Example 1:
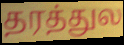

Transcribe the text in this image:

தரத்துல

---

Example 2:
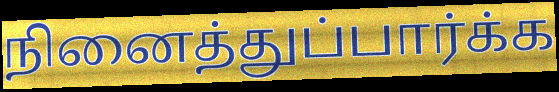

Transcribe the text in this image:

நினைத்துப்பார்க்க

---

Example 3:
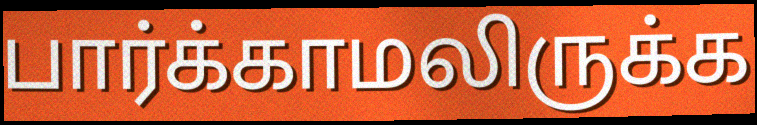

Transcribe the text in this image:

பார்க்காமலிருக்க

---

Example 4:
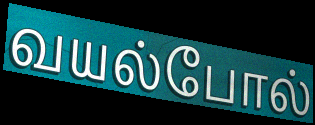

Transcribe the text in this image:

வயல்போல்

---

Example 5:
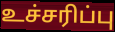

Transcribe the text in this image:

உச்சரிப்பு